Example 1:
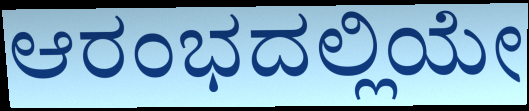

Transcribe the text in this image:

ಆರಂಭದಲ್ಲಿಯೇ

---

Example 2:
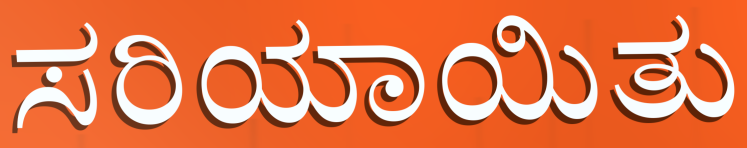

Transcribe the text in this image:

ಸರಿಯಾಯಿತು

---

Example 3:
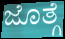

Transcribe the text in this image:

ಜೊತ್ಗೆ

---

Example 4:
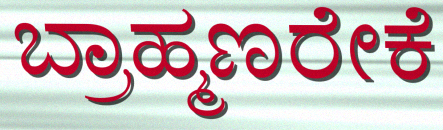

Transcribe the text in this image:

ಬ್ರಾಹ್ಮಣರೇಕೆ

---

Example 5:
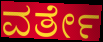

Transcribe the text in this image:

ವರ್ತೇ